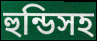
হুন্ডিসহ